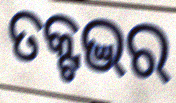
ତକ୍ଟଦ୍ଭର